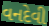
વનદેવી